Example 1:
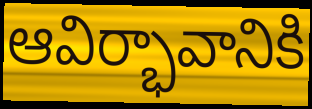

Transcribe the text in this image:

ఆవిర్భావానికి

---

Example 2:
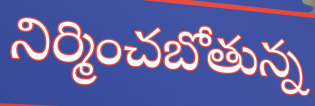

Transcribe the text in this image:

నిర్మించబోతున్న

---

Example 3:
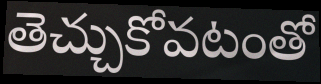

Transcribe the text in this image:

తెచ్చుకోవటంతో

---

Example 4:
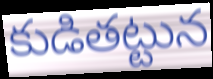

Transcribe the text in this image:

కుడితట్టున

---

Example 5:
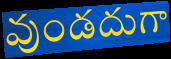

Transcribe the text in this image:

వుండదుగా